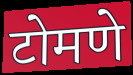
टोमणे